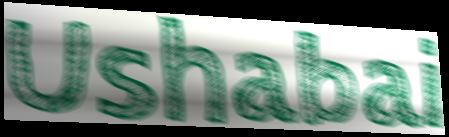
Ushabai